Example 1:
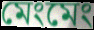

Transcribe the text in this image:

মেংমেং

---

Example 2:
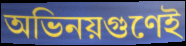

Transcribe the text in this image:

অভিনয়গুণেই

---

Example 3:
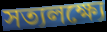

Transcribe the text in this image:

সত্যলক্ষ্যে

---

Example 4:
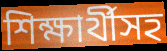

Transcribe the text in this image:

শিক্ষার্থীসহ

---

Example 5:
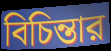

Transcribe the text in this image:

বিচিন্তার